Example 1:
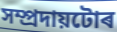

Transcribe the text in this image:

সম্প্ৰদায়টোৰ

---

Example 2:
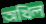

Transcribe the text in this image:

অখিল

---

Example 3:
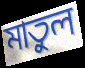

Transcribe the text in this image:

মাতুল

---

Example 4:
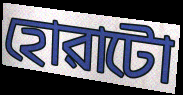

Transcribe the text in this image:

হোৱাটো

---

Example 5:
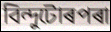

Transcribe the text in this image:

বিন্দুটোৰপৰা